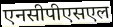
एनसीपीएसएल